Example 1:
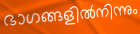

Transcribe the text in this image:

ഭാഗങ്ങളിൽനിന്നും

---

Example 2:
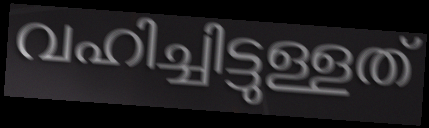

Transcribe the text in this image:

വഹിച്ചിട്ടുള്ളത്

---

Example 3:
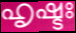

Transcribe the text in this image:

ഹൃഷ്ടഃ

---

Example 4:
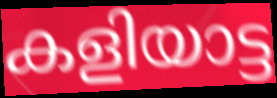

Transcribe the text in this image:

കളിയാട്ട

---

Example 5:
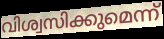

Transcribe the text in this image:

വിശ്വസിക്കുമെന്ന്